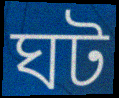
ঘট